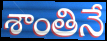
శాంతినే